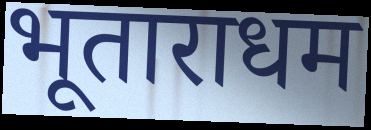
भूताराधम